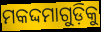
ମକଦ୍ଦମାଗୁଡ଼ିକୁ